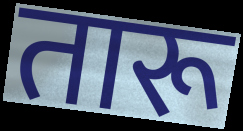
तारू